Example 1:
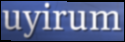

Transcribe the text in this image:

uyirum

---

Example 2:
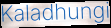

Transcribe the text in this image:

Kaladhungi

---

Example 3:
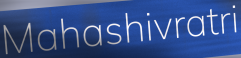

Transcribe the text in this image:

Mahashivratri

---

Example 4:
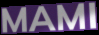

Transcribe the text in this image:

MAMI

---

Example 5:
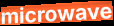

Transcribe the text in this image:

microwave